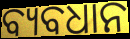
ବ୍ୟବଧାନ